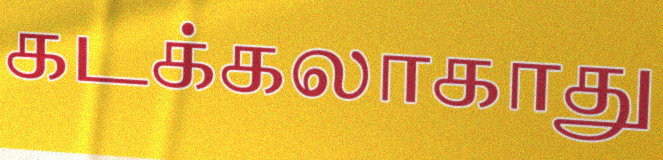
கடக்கலாகாது